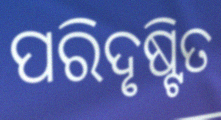
ପରିଦୃଷ୍ଟିତ